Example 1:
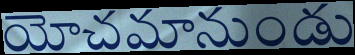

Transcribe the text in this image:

యోచమానుండు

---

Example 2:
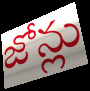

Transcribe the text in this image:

జోన్లు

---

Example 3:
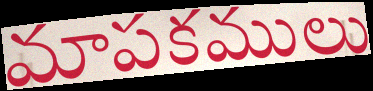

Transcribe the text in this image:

మాపకములు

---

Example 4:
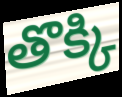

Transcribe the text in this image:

తొక్కి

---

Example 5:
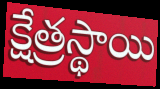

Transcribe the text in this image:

క్షేత్రస్థాయి